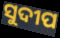
ସୁଦୀପ